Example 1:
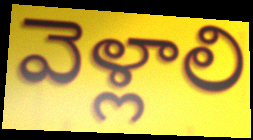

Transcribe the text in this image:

వెళ్లాలి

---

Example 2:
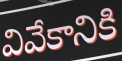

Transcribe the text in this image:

వివేకానికి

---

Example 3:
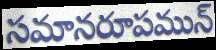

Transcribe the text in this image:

సమానరూపమున్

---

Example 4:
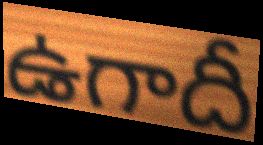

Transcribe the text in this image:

ఉగాదీ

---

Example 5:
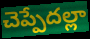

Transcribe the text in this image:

చెప్పేదల్లా